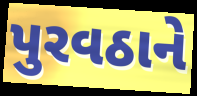
પુરવઠાને